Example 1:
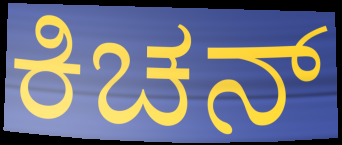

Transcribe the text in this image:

ಕಿಚನ್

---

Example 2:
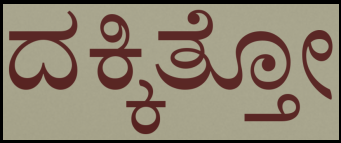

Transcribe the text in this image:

ದಕ್ಕಿತ್ತೋ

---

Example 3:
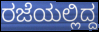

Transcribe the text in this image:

ರಜೆಯಲ್ಲಿದ್ದ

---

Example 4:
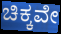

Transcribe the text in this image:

ಚಿಕ್ಕವೇ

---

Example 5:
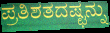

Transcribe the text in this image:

ಪ್ರತಿಶತದಷ್ಟನ್ನು